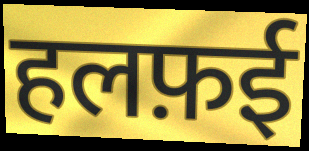
हलफ़ई